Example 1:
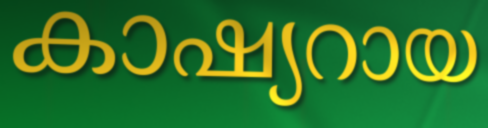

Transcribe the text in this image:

കാഷ്യറായ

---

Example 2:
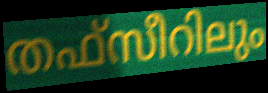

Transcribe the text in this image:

തഫ്സീറിലും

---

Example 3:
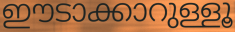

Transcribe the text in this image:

ഈടാക്കാറുള്ളൂ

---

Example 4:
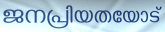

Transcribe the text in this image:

ജനപ്രിയതയോട്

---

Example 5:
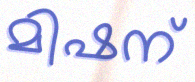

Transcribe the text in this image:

മിഷന്